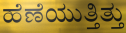
ಹೆಣೆಯುತ್ತಿತ್ತು